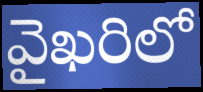
వైఖరిలో